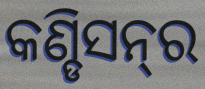
କଣ୍ଡିସନ୍‌ର